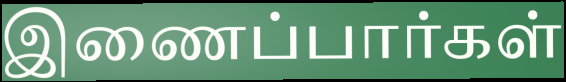
இணைப்பார்கள்